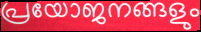
പ്രയോജനങ്ങളും